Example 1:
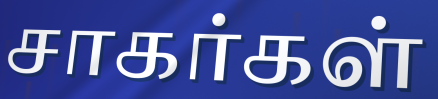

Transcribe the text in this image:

சாகர்கள்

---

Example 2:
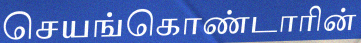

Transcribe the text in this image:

செயங்கொண்டாரின்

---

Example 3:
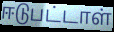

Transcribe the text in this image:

ஈடுபட்டாள்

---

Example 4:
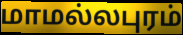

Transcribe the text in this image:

மாமல்லபுரம்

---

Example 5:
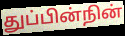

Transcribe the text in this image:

துப்பின்நின்